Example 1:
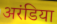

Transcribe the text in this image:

अरंडिया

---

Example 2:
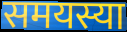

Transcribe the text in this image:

समयस्या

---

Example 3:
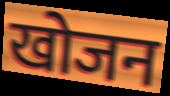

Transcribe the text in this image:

खोजन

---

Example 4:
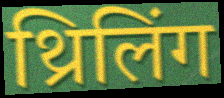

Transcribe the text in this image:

थ्रिलिंग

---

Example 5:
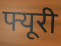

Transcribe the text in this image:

फ्यूरी